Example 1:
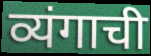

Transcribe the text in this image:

व्यंगाची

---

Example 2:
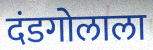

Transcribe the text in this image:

दंडगोलाला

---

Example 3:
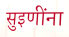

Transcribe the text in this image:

सुइणींना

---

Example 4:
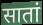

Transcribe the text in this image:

सातां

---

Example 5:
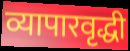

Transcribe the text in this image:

व्यापारवृद्धी